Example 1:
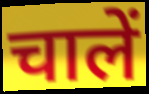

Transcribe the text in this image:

चालें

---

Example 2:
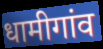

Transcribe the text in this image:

धामीगांव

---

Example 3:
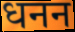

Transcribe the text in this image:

धनन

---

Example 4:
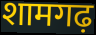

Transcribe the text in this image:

शामगढ़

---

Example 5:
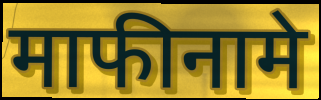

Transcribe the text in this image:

माफीनामे